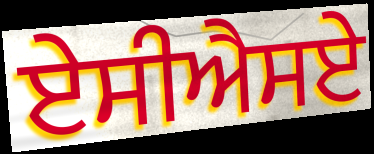
ਏਸੀਐਸਏ